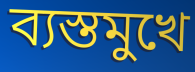
ব্যস্তমুখে